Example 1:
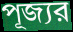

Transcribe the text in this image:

পূজ্যর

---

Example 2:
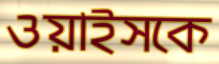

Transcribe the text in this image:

ওয়াইসকে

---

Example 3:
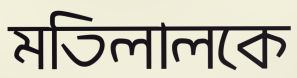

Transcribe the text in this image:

মতিলালকে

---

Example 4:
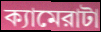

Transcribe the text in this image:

ক্যামেরাটা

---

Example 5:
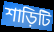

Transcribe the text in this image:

শাড়িটি